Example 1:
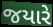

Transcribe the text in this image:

જયારે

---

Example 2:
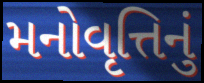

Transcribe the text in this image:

મનોવૃત્તિનું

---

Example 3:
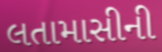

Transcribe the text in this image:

લતામાસીની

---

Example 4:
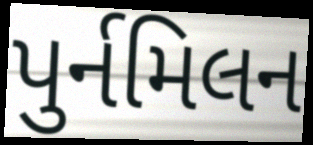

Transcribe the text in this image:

પુર્નમિલન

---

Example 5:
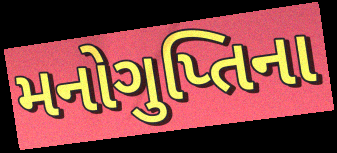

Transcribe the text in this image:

મનોગુપ્તિના